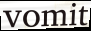
vomit